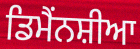
ਡਿਮੈਂਨਸ਼ੀਆ